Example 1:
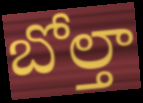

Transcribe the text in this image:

బోల్తా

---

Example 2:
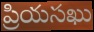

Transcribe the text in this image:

ప్రియసఖు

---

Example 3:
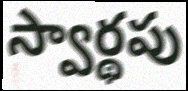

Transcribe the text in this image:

స్వార్థపు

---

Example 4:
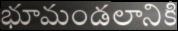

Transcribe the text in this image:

భూమండలానికి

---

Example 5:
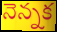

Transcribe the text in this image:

నెన్నక